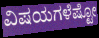
ವಿಷಯಗಳೆಷ್ಟೋ